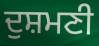
ਦੁਸ਼ਮਣੀ